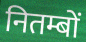
नितम्बों